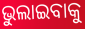
ଭୁଲାଇବାକୁ